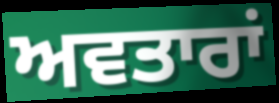
ਅਵਤਾਰਾਂ